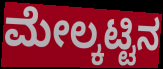
ಮೇಲ್ಕಟ್ಟಿನ